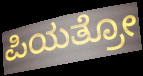
ಪಿಯತ್ರೋ